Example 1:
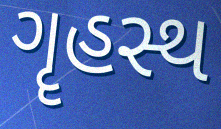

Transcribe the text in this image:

ગૄહસ્થ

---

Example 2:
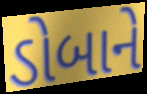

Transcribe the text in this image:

ડોબાને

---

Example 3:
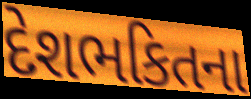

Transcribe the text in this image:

દેશભકિતના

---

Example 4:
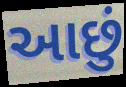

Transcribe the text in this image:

આછું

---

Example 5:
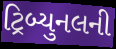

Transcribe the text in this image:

ટ્રિબ્યુનલની